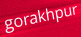
gorakhpur